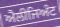
ਐਲੀਜਿਅੰਟ